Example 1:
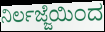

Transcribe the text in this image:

ನಿರ್ಲಜ್ಜೆಯಿಂದ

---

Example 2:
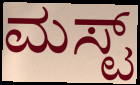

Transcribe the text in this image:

ಮಸ್ಟ್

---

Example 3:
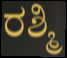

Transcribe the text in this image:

ರಶ್ಮಿ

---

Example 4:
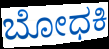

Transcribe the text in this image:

ಬೋಧಕಿ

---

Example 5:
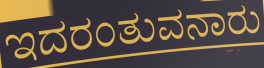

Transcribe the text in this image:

ಇದರಂತುವನಾರು